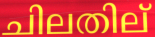
ചിലതില്